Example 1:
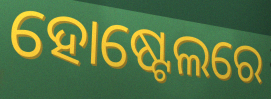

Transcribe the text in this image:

ହୋଷ୍ଟେଲରେ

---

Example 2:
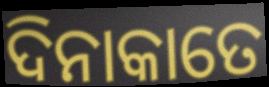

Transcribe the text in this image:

ଦିନାକାତେ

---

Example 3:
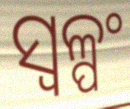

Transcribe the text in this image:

ସ୍ୱଳ୍ପଂ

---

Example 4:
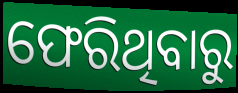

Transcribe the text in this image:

ଫେରିଥିବାରୁ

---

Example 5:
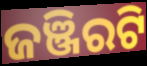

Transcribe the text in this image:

ଜଞ୍ଜିରଟି